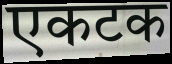
एकटक